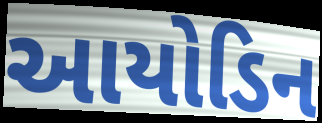
આયોડિન